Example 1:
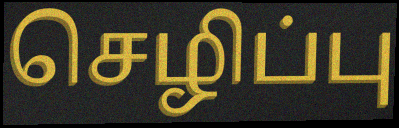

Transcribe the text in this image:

செழிப்பு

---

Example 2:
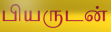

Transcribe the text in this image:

பியருடன்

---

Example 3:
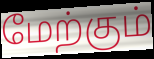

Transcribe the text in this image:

மேற்கும்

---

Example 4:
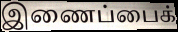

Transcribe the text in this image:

இணைப்பைக்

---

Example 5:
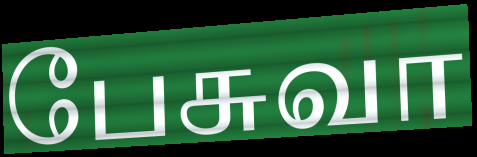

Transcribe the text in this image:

பேசுவா